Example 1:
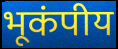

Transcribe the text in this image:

भूकंपीय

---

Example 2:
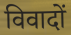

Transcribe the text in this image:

विवादों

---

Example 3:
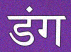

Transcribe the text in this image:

डंग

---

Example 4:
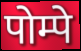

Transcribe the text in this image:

पोम्पे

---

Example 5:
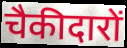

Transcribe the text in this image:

चैकीदारों